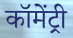
कॉमेंट्री